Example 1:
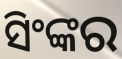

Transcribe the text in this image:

ସିଂଙ୍କର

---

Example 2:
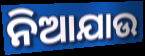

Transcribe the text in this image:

ନିଆଯାଉ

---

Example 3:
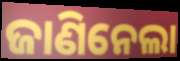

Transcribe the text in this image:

ଜାଣିନେଲା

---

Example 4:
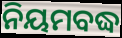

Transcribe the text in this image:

ନିୟମବଦ୍ଧ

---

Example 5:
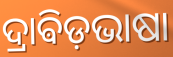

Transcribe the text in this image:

ଦ୍ରାଵିଡ଼ଭାଷା